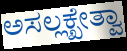
ಅಸಲ್ಲಕ್ಖೇತ್ವಾ